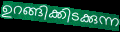
ഉറങ്ങിക്കിടക്കുന്ന